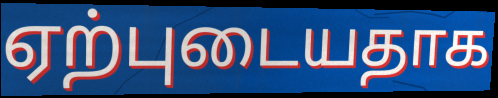
ஏற்புடையதாக